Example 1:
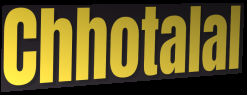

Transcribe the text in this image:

Chhotalal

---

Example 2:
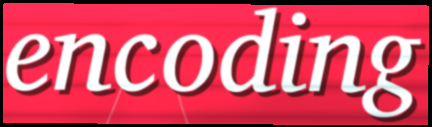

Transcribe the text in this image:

encoding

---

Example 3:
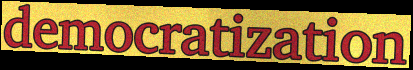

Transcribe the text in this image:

democratization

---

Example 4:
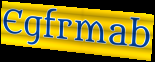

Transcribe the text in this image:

Egfrmab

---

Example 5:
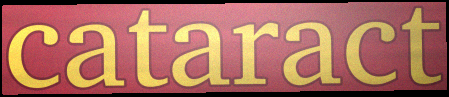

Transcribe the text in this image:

cataract